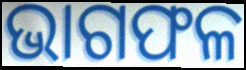
ଭାଗଫଳ